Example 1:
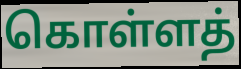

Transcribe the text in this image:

கொள்ளத்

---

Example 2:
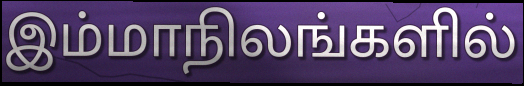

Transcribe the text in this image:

இம்மாநிலங்களில்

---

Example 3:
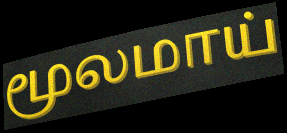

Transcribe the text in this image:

மூலமாய்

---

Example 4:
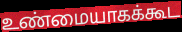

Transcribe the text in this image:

உண்மையாகக்கூட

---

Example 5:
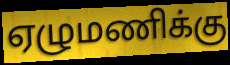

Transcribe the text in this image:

ஏழுமணிக்கு